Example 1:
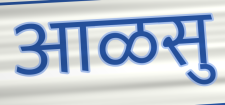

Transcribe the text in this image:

आळसु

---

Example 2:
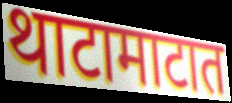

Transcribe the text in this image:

थाटामाटात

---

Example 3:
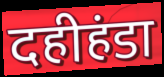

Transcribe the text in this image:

दहीहंडा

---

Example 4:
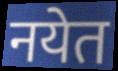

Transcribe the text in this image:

नयेत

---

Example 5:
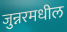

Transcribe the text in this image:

जुन्नरमधील